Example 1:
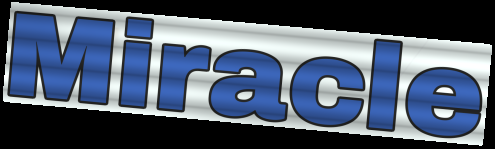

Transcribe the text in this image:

Miracle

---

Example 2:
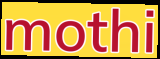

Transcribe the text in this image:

mothi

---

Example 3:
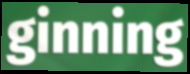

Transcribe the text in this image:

ginning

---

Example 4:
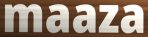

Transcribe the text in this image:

maaza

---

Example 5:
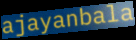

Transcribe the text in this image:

ajayanbala